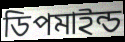
ডিপমাইন্ড